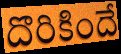
దొరికిందే